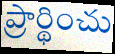
ప్రార్థించు